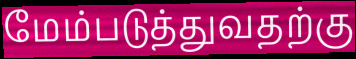
மேம்படுத்துவதற்கு